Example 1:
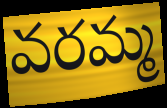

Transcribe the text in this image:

వరమ్మ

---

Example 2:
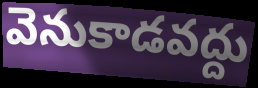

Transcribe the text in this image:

వెనుకాడవద్దు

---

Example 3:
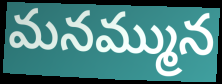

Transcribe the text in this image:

మనమ్మున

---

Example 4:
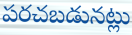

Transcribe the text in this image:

పరచబడునట్లు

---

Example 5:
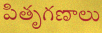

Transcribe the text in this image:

పితృగణాలు